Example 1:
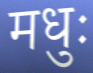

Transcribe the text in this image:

मधुः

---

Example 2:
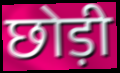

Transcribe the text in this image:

छोड़ी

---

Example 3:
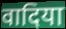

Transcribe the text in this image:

वादिया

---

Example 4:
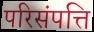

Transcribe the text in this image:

परिसंपत्ति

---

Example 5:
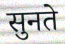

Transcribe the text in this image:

सुनते